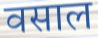
वसाल